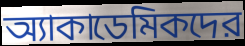
অ্যাকাডেমিকদের